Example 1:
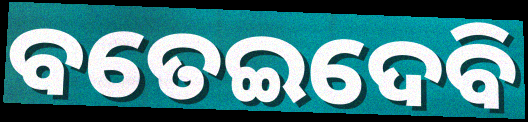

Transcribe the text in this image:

ବତେଇଦେବି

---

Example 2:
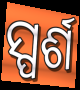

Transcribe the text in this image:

ସ୍ପର୍ଶ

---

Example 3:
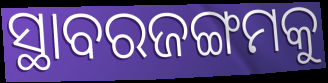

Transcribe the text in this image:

ସ୍ଥାବରଜଙ୍ଗମକୁ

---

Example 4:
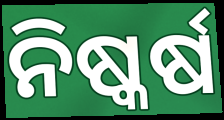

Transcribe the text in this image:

ନିଷ୍କର୍ଷ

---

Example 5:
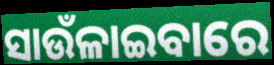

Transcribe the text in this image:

ସାଉଁଳାଇବାରେ